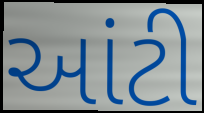
આંટી